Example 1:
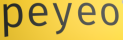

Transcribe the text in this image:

peyeo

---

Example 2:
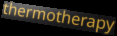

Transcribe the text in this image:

thermotherapy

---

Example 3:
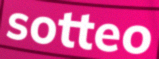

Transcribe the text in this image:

sotteo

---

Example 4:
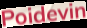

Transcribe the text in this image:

Poidevin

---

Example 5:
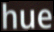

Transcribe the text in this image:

hue